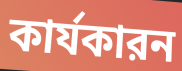
কার্যকারন